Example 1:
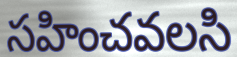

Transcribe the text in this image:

సహించవలసి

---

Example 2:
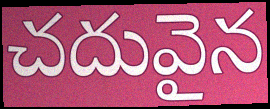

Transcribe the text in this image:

చదువైన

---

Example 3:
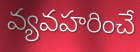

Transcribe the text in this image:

వ్యవహరించే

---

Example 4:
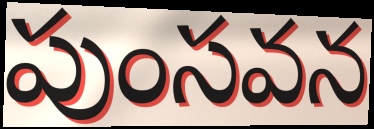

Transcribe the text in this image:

పుంసవన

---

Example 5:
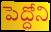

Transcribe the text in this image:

పెద్దోని